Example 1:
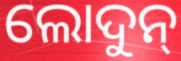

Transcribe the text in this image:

ଲୋଦୁନ୍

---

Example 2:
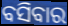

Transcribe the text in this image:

ବସିବାର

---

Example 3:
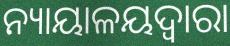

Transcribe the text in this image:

ନ୍ୟାୟାଳୟଦ୍ୱାରା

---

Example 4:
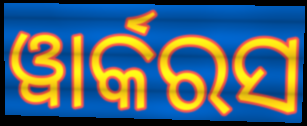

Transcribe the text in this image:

ୱାର୍କରସ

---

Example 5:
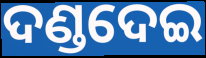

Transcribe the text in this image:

ଦଣ୍ଡଦେଇ